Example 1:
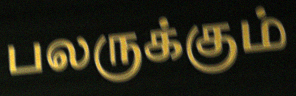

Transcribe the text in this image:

பலருக்கும்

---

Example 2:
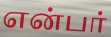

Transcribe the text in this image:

என்பர்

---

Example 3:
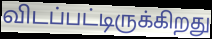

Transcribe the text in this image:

விடப்பட்டிருக்கிறது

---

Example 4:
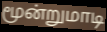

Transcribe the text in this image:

மூன்றுமாடி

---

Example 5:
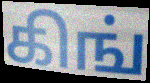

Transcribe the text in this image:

கிங்